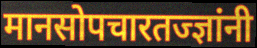
मानसोपचारतज्ज्ञांनी